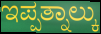
ಇಪ್ಪತ್ನಾಲ್ಕು